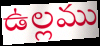
ఉల్లము